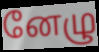
னேழு